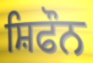
ਸ਼ਿਫੌਨ